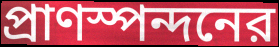
প্রাণস্পন্দনের